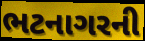
ભટનાગરની